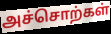
அச்சொற்கள்